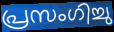
പ്രസംഗിച്ചു